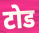
टोड